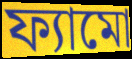
ফ্যামো